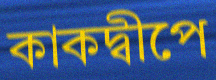
কাকদ্বীপে